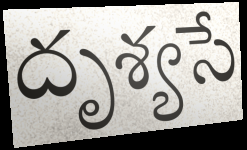
దృశ్యసే